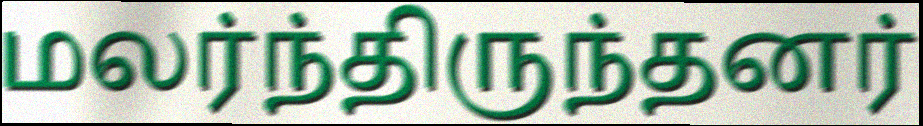
மலர்ந்திருந்தனர்